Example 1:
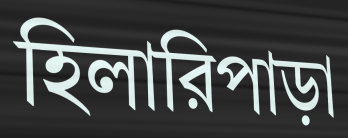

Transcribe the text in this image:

হিলারিপাড়া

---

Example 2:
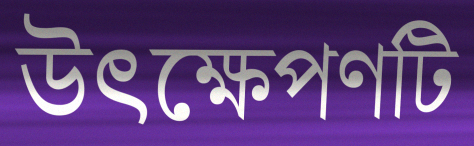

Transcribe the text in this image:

উৎক্ষেপণটি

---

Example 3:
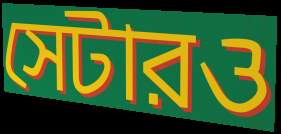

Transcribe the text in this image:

সেটারও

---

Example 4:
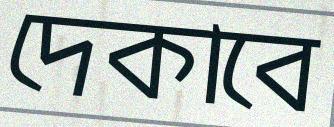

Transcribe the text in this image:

দেকাবে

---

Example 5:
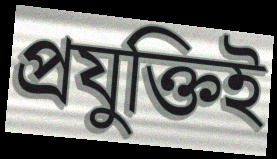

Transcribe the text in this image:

প্রযুক্তিই